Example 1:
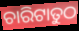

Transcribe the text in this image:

ଚାରିଟାତୁଠ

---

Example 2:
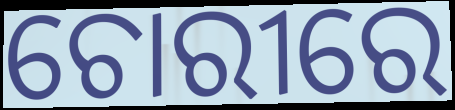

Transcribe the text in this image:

ଚୋରୀରେ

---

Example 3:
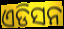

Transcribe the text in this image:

ଏଡିସନ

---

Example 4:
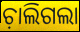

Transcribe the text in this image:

ଚ଼ାଲିଗଲା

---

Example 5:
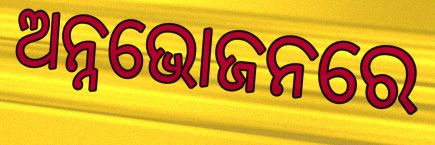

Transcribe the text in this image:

ଅନ୍ନଭୋଜନରେ